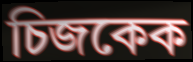
চিজকেক